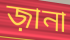
জ়ানা